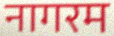
नागरम